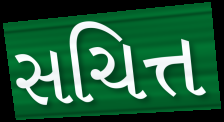
સચિત્ત